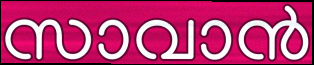
സാവാൻ